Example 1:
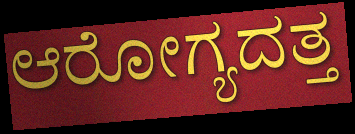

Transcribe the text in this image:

ಆರೋಗ್ಯದತ್ತ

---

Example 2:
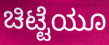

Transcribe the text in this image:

ಚಿಟ್ಟೆಯೂ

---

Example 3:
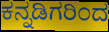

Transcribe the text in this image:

ಕನ್ನಡಿಗರಿಂದ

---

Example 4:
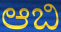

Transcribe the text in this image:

ಆಬಿ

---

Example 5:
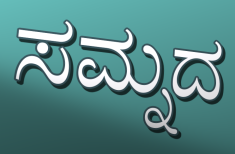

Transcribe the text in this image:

ಸಮ್ನದ